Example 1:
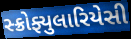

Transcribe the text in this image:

સ્ક્રોફ્યુલારિયેસી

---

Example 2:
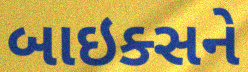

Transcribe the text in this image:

બાઇક્સને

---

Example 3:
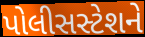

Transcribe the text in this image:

પોલીસસ્ટેશને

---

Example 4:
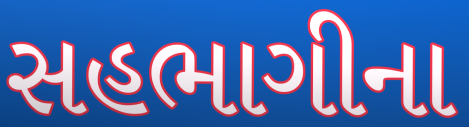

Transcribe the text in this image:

સહભાગીના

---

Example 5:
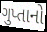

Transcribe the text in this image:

ગુપ્તાનો